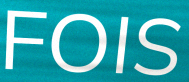
FOIS